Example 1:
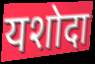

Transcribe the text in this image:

यशोदा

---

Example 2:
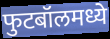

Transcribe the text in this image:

फुटबॉलमध्ये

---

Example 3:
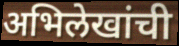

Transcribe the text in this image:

अभिलेखांची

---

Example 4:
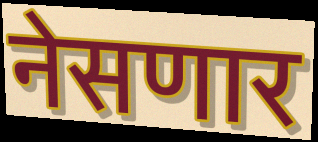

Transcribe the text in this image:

नेसणार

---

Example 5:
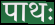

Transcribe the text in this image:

पाथः